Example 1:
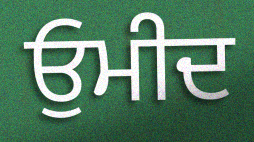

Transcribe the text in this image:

ਓੁਮੀਦ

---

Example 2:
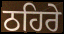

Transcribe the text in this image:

ਠਹਿਰੇ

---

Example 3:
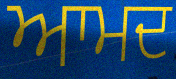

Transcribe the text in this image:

ਆਮਦ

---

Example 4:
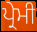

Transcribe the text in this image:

ਪ੍ਰੇਮੀ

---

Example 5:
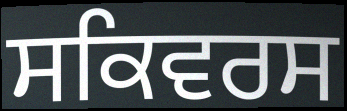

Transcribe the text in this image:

ਸਕਿਵਰਸ